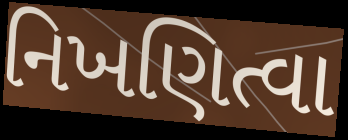
નિખણિત્વા